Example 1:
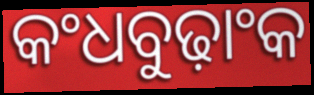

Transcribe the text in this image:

କଂଧବୁଢ଼ାଂକ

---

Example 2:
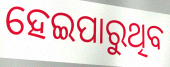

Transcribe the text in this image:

ହେଇପାରୁଥିବ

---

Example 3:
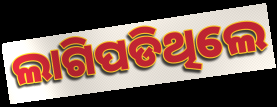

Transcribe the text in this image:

ଲାଗିପଡିଥିଲେ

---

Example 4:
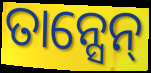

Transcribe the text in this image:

ତାନ୍ସେନ୍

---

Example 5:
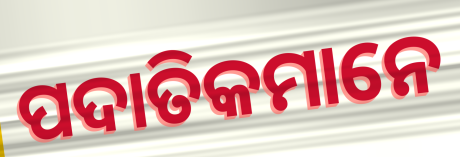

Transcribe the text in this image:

ପଦାତିକମାନେ